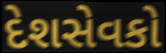
દેશસેવકો